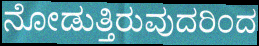
ನೋಡುತ್ತಿರುವುದರಿಂದ